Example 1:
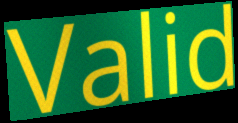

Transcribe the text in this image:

Valid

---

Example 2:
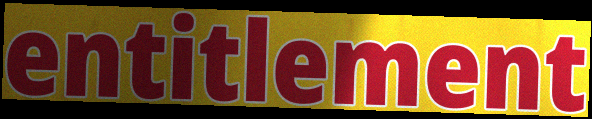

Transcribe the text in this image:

entitlement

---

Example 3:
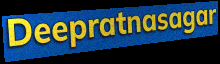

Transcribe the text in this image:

Deepratnasagar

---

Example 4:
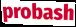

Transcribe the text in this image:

probash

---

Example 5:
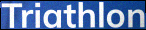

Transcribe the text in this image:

Triathlon